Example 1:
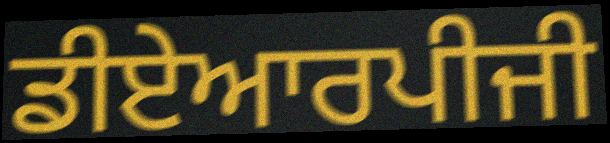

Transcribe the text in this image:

ਡੀਏਆਰਪੀਜੀ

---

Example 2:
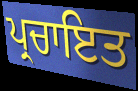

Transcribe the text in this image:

ਪ੍ਰਚਾਇਤ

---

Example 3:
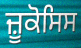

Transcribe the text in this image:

ਜ਼ੂਕੋਸਿਸ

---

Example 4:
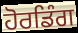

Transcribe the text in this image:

ਹੋਰਡਿੰਗ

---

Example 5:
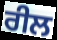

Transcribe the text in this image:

ਰੀਲ